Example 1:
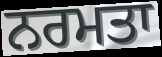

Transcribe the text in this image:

ਨਰਮਤਾ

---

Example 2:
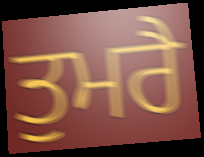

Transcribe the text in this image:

ਤੁਮਰੈ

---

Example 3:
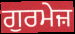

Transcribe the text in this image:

ਗੁਰਮੇਜ਼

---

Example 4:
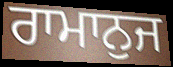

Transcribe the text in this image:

ਰਾਮਾਨੁਜ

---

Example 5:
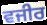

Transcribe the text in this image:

ਵਜੀਰ